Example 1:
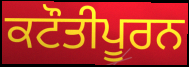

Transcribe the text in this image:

ਕਟੌਤੀਪੂਰਨ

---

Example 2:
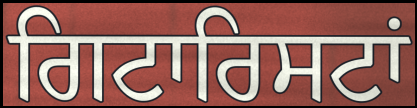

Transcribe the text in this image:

ਗਿਟਾਰਿਸਟਾਂ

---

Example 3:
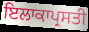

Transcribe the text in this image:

ਇਲਾਕਾਪ੍ਰਸਤੀ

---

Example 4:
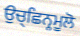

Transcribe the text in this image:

ਉਚ੍ਛਿਨ੍ਨਮੂਲੋ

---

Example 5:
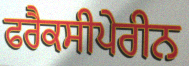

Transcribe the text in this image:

ਫਰੈਕਸੀਪੇਰੀਨ